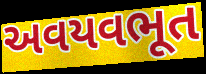
અવયવભૂત